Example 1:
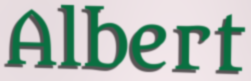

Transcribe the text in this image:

Albert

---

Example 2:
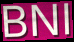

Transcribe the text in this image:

BNI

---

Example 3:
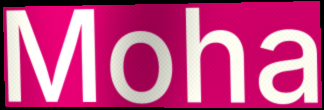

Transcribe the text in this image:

Moha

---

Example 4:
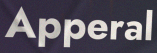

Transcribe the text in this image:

Apperal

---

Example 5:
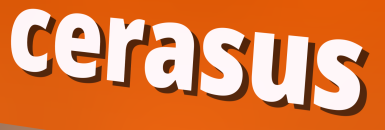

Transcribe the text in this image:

cerasus